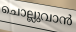
ചൊല്ലുവാൻ